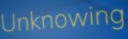
Unknowing